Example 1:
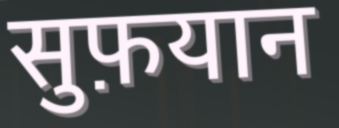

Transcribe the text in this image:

सुफ़यान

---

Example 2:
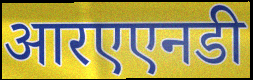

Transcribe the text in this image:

आरएएनडी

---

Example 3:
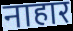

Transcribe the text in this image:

नाहार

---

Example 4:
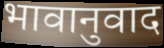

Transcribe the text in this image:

भावानुवाद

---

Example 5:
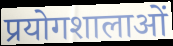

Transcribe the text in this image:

प्रयोगशालाओं